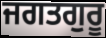
ਜਗਤਗੁਰੂ